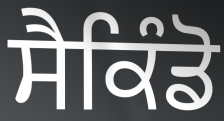
ਸੈਕਿੰਡੋ